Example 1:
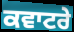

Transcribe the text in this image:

ਕਵਾਟਰੇ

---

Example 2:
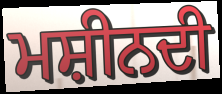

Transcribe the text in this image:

ਮਸ਼ੀਨਦੀ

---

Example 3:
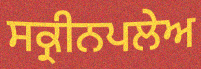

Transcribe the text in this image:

ਸਕ੍ਰੀਨਪਲੇਅ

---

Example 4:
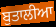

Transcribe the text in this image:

ਬੁਤਾਲੀਆ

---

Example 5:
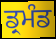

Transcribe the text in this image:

ਡ੍ਰਮੰਡ